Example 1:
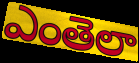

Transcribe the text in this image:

ఎంతెలా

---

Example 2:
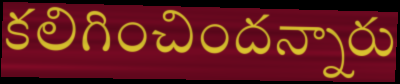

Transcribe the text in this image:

కలిగించిందన్నారు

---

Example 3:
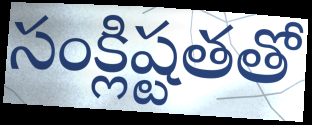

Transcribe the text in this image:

సంక్లిష్టతతో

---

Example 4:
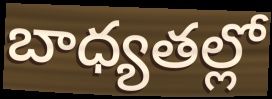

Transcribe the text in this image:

బాధ్యతల్లో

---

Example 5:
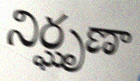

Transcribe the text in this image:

నిర్ఘృణా